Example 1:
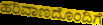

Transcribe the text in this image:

ಹರಿವಾಣದೊಂದಿಗೆ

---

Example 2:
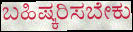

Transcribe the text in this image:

ಬಹಿಷ್ಕರಿಸಬೇಕು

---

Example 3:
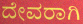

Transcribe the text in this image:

ದೇವರಾಗಿ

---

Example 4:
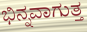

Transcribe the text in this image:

ಭಿನ್ನವಾಗುತ್ತ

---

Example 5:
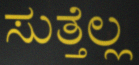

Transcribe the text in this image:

ಸುತ್ತೆಲ್ಲ